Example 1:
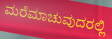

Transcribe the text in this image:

ಮರೆಮಾಚುವುದರಲ್ಲಿ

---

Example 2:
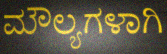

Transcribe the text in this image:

ಮೌಲ್ಯಗಳಾಗಿ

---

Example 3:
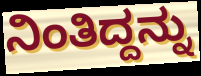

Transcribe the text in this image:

ನಿಂತಿದ್ದನ್ನು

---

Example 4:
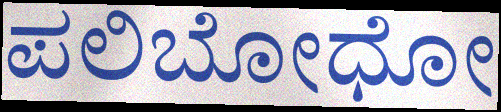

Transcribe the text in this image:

ಪಲಿಬೋಧೋ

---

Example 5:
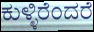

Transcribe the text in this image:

ಕುಳ್ಳಿರೆಂದರೆ